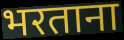
भरताना